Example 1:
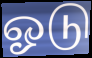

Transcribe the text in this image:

ஓடு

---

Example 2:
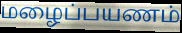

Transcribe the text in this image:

மழைப்பயணம்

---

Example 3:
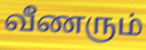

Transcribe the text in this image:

வீணரும்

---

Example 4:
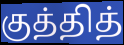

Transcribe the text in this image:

குத்தித்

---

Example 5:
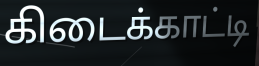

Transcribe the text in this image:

கிடைக்காட்டி